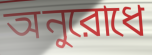
অনুরোধে